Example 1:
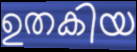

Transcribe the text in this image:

ഉതകിയ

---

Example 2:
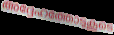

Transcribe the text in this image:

അദ്ദേഹത്തോടുകൂടെ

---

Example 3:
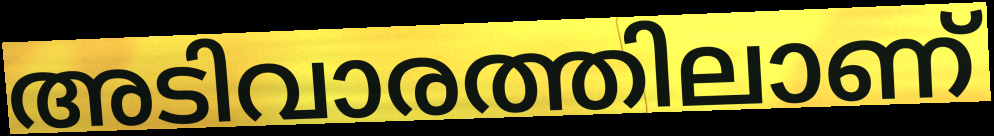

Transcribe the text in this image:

അടിവാരത്തിലാണ്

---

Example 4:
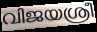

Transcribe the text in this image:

വിജയശ്രീ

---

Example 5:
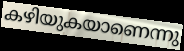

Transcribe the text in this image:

കഴിയുകയാണെന്നു